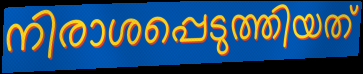
നിരാശപ്പെടുത്തിയത്